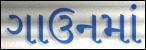
ગાઉનમાં